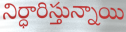
నిర్ధారిస్తున్నాయి